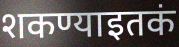
शकण्याइतकं